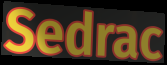
Sedrac